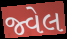
જ્વેલ